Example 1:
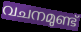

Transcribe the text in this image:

വചനമുണ്ട്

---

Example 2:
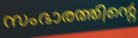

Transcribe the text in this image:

സംഭാരത്തിന്റെ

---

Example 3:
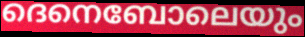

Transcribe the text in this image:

ദെനെബോലെയും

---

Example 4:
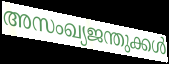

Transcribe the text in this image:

അസംഖ്യജന്തുക്കൾ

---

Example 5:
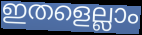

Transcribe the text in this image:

ഇതളെല്ലാം